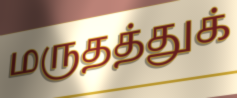
மருதத்துக்